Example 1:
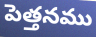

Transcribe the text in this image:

పెత్తనము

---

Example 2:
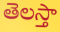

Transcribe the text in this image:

తెలస్తా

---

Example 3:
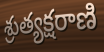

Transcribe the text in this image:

శ్రుత్యక్షరాణి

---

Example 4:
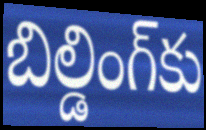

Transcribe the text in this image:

బిల్డింగ్‌కు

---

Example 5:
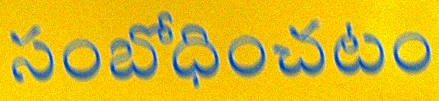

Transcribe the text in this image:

సంబోధించటం